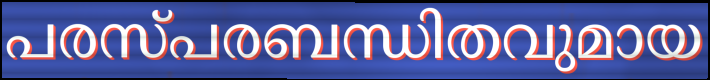
പരസ്പരബന്ധിതവുമായ